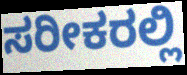
ಸರೀಕರಲ್ಲಿ